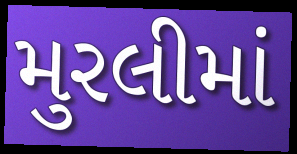
મુરલીમાં